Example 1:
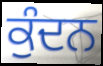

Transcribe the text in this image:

ਕੁੰਦਨ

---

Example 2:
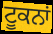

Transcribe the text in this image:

ਟੂਕਨਾਂ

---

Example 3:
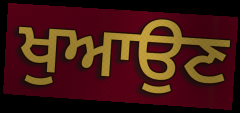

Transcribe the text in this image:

ਖੁਆਉਣ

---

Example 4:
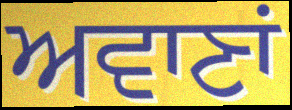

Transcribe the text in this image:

ਅਵਾਣਾਂ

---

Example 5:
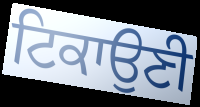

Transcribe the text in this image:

ਟਿਕਾਉਣੀ